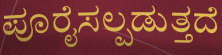
ಪೂರೈಸಲ್ಪಡುತ್ತದೆ